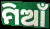
ମିଆଁ